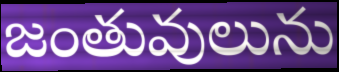
జంతువులును